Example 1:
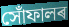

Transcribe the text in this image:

সোঁফালৰ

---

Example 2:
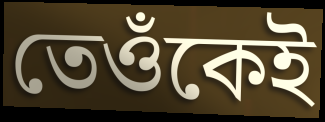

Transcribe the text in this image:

তেওঁকেই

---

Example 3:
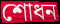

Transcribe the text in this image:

শোধন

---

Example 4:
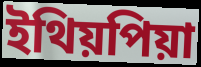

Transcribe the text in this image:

ইথিয়পিয়া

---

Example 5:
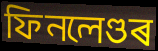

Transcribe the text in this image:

ফিনলেণ্ডৰ